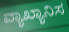
ವ್ಯಾಖ್ಯಾನಿಸ